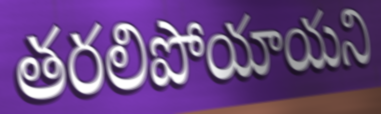
తరలిపోయాయని